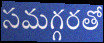
సమగ్గరతో